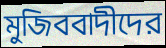
মুজিববাদীদের